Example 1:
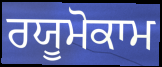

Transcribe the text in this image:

ਰਯੂਮੋਕਾਮ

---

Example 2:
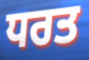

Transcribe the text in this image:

ਧਰਤ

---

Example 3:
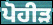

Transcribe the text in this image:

ਪੋਹੀੜ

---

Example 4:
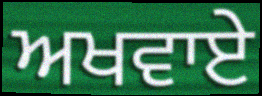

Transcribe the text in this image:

ਅਖਵਾਏ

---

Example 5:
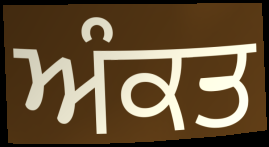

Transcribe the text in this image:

ਅੰਕਤ